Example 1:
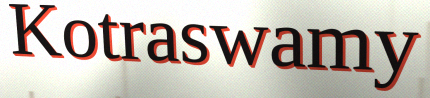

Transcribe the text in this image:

Kotraswamy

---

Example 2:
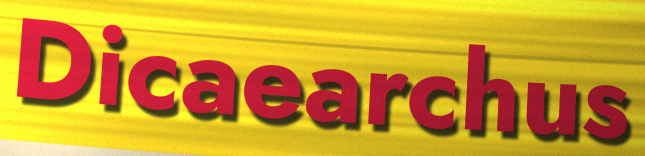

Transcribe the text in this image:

Dicaearchus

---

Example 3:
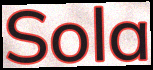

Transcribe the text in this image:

Sola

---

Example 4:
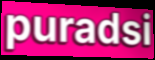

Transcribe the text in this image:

puradsi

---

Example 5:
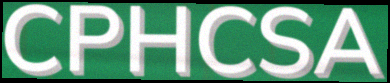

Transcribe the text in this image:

CPHCSA